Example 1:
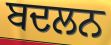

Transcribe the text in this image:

ਬਦਲਨ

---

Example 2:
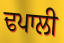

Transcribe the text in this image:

ਢਪਾਲੀ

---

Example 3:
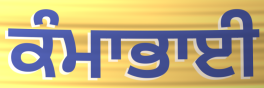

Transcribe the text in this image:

ਕੰਮਾਭਾਈ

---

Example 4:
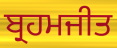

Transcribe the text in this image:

ਬ੍ਰਹਮਜੀਤ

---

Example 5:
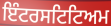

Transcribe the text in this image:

ਇੰਟਰਸਟਿਟਿਅਮ